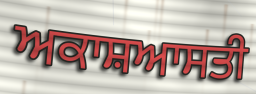
ਅਕਾਸ਼ਆਸਤੀ